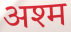
अश्म